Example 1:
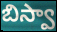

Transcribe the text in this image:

బిస్వా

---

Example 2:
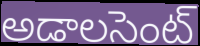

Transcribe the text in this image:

అడాలసెంట్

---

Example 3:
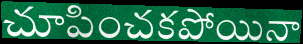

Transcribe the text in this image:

చూపించకపోయినా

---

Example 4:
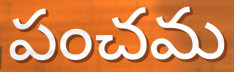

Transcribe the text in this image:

పంచమ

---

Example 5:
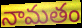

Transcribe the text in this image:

నామతం